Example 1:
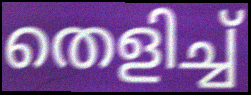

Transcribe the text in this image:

തെളിച്ച്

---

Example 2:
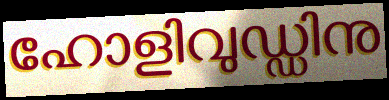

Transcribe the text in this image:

ഹോളിവുഡ്ഡിനു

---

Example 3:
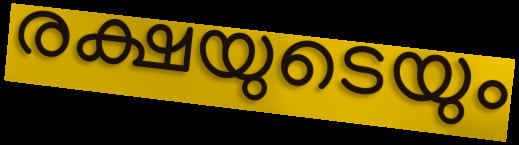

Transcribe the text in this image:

രക്ഷയുടെയും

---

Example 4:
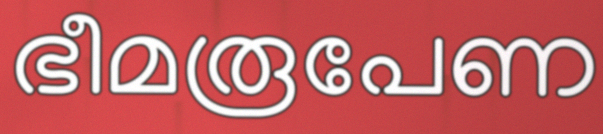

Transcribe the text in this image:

ഭീമരൂപേണ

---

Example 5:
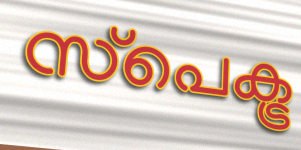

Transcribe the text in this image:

സ്‌പെക്ട്ര